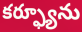
కర్ఫ్యూను